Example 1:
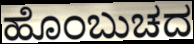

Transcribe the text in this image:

ಹೊಂಬುಚದ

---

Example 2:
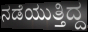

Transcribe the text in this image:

ನಡೆಯುತ್ತಿದ್ದ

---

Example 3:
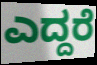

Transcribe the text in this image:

ಎದ್ದರೆ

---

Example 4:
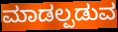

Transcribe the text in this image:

ಮಾಡಲ್ಪಡುವ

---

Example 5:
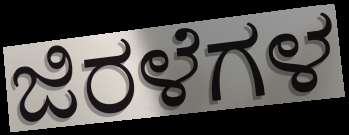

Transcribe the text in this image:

ಜಿರಳೆಗಳ